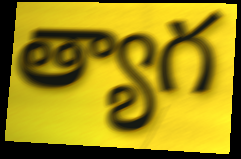
త్యాగ